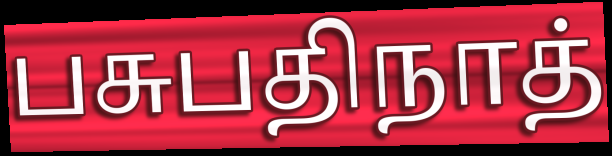
பசுபதிநாத்